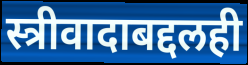
स्त्रीवादाबद्दलही